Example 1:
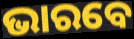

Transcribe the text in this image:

ଭାରବେ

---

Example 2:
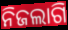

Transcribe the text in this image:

ନିଜଲାଗି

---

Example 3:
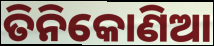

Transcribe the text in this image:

ତିନିକୋଣିଆ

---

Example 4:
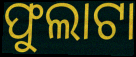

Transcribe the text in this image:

ଫୁଲାଟା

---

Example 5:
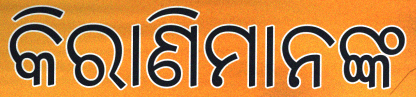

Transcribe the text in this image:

କିରାଣିମାନଙ୍କ